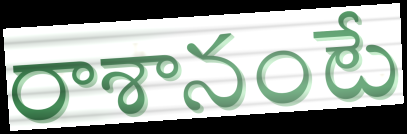
రాశానంటే